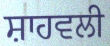
ਸ਼ਾਹਵਲੀ